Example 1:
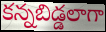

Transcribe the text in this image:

కన్నబిడ్డలాగా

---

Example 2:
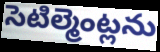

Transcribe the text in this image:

సెటిల్మెంట్లను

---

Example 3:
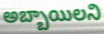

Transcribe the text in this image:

అబ్బాయిలని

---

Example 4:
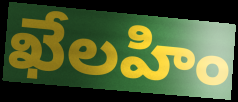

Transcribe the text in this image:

ఖేలహిం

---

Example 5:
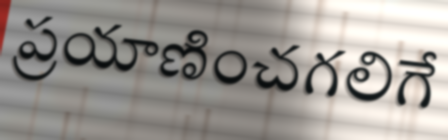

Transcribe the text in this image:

ప్రయాణించగలిగే